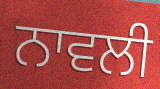
ਨਾਵਲੀ